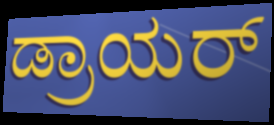
ಡ್ರಾಯರ್